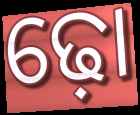
ଢ଼ୋ